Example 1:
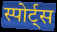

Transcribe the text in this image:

स्पोर्ट्स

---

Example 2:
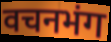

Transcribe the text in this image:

वचनभंग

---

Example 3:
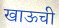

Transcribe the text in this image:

खाऊची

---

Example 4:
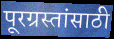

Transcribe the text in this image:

पूरग्रस्तांसाठी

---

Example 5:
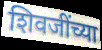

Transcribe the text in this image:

शिवजींच्या